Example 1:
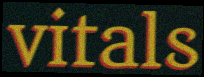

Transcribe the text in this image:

vitals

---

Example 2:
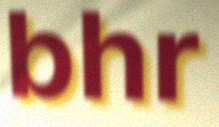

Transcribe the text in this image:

bhr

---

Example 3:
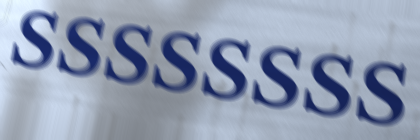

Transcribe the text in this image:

ssssssss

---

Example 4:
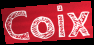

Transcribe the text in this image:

Coix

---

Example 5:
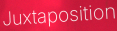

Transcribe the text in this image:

Juxtaposition